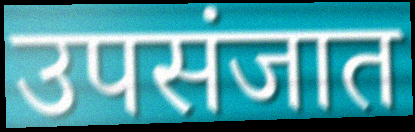
उपसंजात